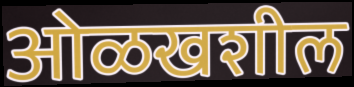
ओळखशील